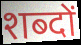
शब्‍दों